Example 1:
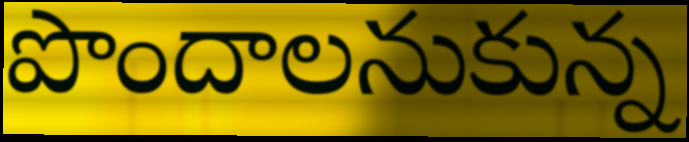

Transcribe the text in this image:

పొందాలనుకున్న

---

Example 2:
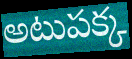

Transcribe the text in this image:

అటుపక్క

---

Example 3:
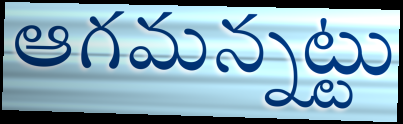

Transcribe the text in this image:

ఆగమన్నట్టు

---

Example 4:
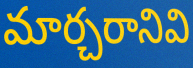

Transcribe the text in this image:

మార్చరానివి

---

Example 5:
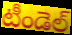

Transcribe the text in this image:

టీండెల్